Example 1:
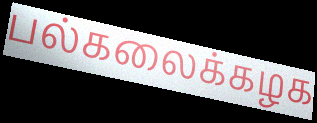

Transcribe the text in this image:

பல்கலைக்கழக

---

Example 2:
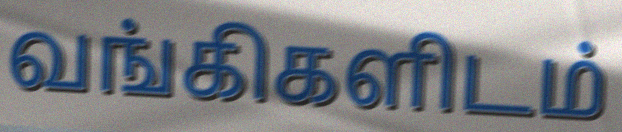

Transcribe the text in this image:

வங்கிகளிடம்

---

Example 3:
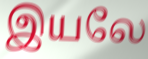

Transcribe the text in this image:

இயலே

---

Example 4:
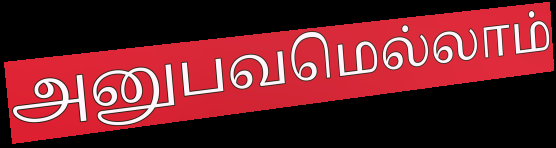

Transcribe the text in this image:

அனுபவமெல்லாம்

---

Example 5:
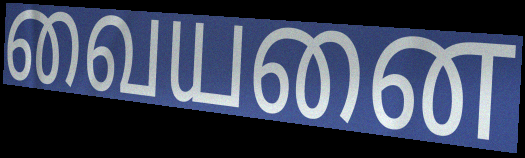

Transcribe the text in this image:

வையனை